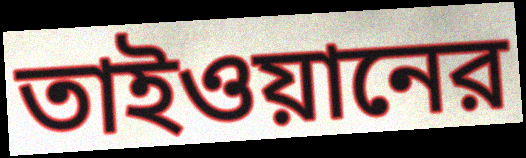
তাইওয়ানের